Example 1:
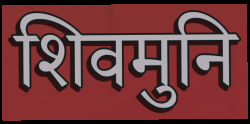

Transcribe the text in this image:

शिवमुनि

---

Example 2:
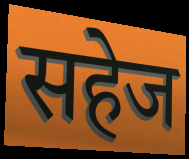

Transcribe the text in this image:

सहेज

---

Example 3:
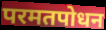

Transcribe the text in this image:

परमतपोधन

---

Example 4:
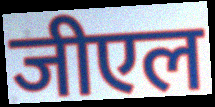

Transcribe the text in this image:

जीएल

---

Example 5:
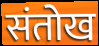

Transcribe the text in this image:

संतोख